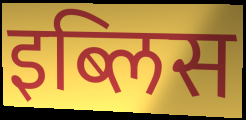
इब्लिस